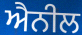
ਐਨੀਲ